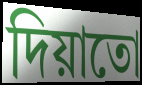
দিয়াতো